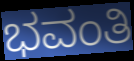
ಭವಂತಿ